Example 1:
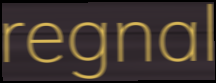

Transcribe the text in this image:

regnal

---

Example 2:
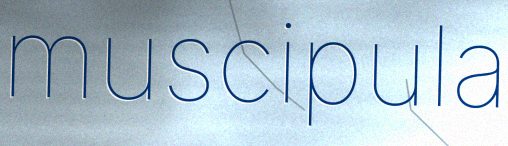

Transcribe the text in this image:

muscipula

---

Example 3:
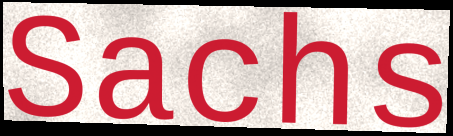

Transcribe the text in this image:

Sachs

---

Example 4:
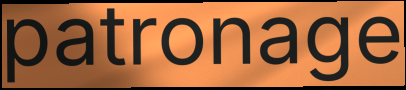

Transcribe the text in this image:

patronage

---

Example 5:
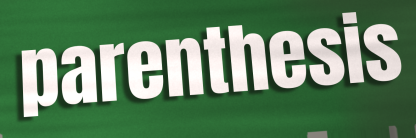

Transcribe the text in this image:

parenthesis